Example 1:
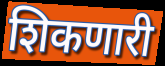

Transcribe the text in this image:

शिकणारी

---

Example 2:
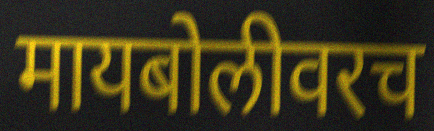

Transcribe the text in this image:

मायबोलीवरच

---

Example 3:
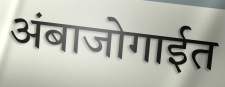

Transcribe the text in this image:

अंबाजोगाईत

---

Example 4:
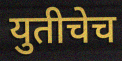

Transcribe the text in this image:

युतीचेच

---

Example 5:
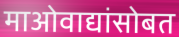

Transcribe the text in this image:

माओवाद्यांसोबत